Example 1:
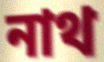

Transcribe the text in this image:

নাথ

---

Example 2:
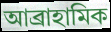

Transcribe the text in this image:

আব্ৰাহামিক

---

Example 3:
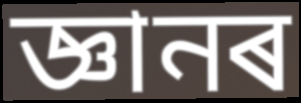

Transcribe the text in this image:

জ্ঞানৰ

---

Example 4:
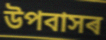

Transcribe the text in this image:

উপবাসৰ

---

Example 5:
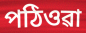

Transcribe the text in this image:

পঠিওৱা